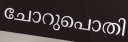
ചോറുപൊതി